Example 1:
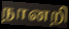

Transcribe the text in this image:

நானறி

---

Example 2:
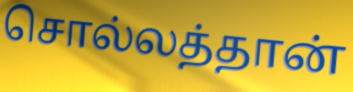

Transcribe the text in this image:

சொல்லத்தான்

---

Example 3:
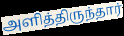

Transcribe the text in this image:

அளித்திருந்தார்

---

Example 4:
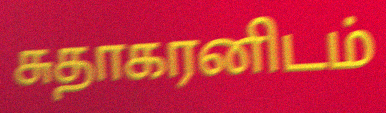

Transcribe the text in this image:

சுதாகரனிடம்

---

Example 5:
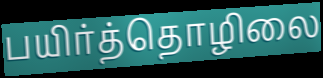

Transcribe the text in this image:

பயிர்த்தொழிலை